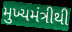
મુખ્યમંત્રીથી